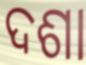
ଦଶା